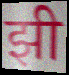
झी